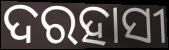
ଦରହାସୀ